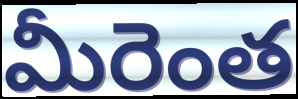
మీరెంత